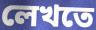
লেখতে